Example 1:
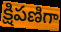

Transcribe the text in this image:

క్షిపణిగా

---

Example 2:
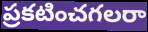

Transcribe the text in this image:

ప్రకటించగలరా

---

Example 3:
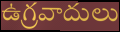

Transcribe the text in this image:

ఉగ్రవాదులు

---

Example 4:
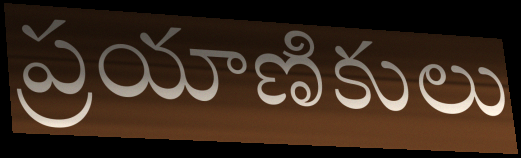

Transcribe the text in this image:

ప్రయాణికులు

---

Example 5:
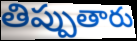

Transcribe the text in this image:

తిప్పుతారు